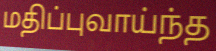
மதிப்புவாய்ந்த